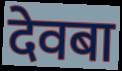
देवबा